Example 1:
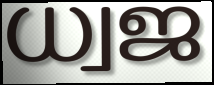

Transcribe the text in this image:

ധ്വജ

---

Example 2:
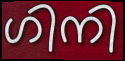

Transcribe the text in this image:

ഗിനി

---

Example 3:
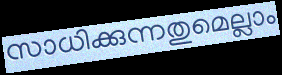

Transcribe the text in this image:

സാധിക്കുന്നതുമെല്ലാം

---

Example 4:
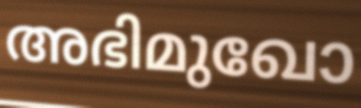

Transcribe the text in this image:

അഭിമുഖോ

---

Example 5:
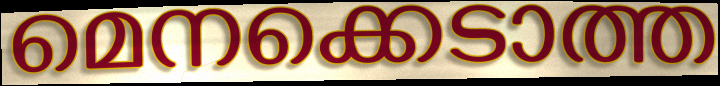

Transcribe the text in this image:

മെനക്കെടാത്ത